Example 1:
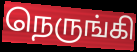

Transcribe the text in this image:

நெருங்கி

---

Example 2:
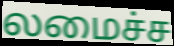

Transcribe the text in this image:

லமைச்ச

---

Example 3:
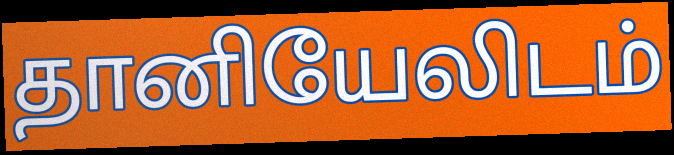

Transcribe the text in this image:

தானியேலிடம்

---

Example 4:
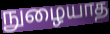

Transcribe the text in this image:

நுழையாத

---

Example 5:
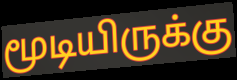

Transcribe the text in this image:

மூடியிருக்கு